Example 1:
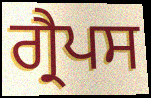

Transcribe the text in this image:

ਗ੍ਰੈਪਸ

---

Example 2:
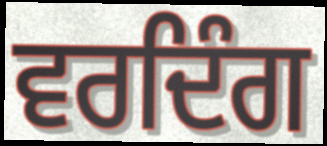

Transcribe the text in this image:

ਵਰਦਿੰਗ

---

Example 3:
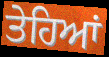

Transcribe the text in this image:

ਤੇਹਿਆਂ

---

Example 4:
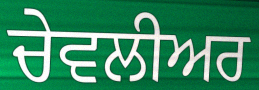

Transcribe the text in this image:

ਚੇਵਲੀਅਰ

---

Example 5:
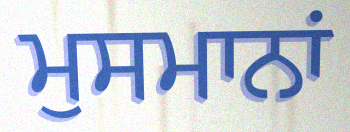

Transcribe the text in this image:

ਮੁਸਮਾਨਾਂ